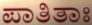
ಪಾತಿತಾಃ